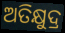
ଅତିକ୍ଷୁଦ୍ର